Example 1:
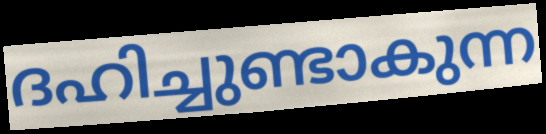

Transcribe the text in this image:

ദഹിച്ചുണ്ടാകുന്ന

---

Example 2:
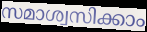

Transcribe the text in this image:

സമാശ്വസിക്കാം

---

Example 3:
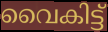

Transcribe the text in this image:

വൈകിട്ട്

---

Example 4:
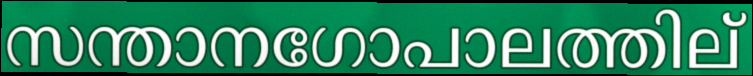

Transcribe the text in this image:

സന്താനഗോപാലത്തില്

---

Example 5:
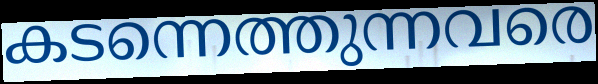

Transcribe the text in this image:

കടന്നെത്തുന്നവരെ